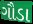
ગૌડા